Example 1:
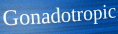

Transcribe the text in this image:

Gonadotropic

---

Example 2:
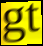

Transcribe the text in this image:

gt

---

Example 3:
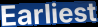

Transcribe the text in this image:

Earliest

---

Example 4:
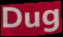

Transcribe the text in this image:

Dug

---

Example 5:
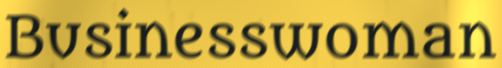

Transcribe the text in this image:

Businesswoman